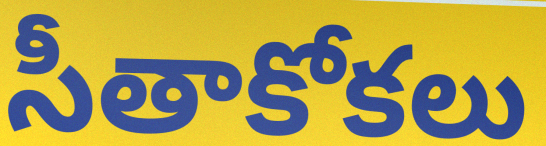
సీతాకోకలు